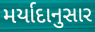
મર્યાદાનુસાર